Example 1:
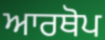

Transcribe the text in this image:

ਆਰਥੋਪ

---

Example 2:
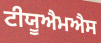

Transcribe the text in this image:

ਟੀਯੂਐਮਐਸ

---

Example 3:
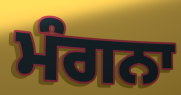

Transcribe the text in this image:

ਮੰਗਨਾ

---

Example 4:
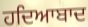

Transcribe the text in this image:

ਹਦਿਆਬਾਦ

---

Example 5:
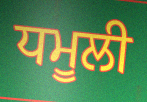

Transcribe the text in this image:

ਧਮੂਲੀ